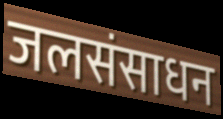
जलसंसाधन